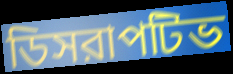
ডিসরাপটিভ